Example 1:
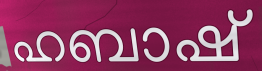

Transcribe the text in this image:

ഹബാഷ്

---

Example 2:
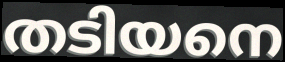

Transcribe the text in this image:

തടിയനെ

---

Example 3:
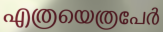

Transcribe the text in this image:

എത്രയെത്രപേർ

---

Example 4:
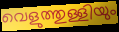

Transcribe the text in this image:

വെളുത്തുള്ളിയും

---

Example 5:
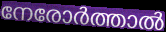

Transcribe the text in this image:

നേരോർത്താൽ